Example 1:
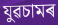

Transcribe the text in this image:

যুৱচামৰ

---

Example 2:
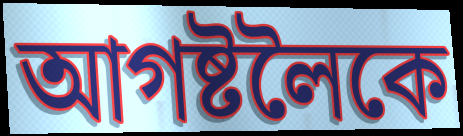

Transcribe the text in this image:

আগষ্টলৈকে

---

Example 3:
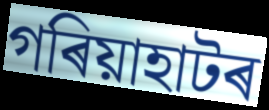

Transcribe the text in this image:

গৰিয়াহাটৰ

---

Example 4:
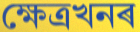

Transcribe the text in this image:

ক্ষেত্ৰখনৰ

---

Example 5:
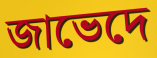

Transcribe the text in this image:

জাভেদে